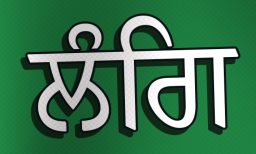
ਲੰਗਿ